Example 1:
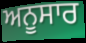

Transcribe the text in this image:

ਅਨੂਸਾਰ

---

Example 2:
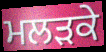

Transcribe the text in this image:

ਮਲੜਕੇ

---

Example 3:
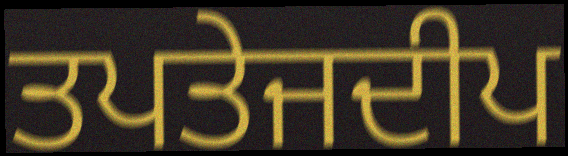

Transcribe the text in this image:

ਤਪਤੇਜਦੀਪ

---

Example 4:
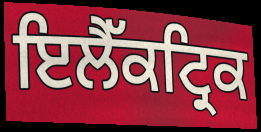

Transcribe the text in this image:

ਇਲੈੱਕਟ੍ਰਿਕ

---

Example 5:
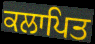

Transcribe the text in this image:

ਕਲਾਪਿਤ